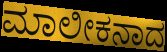
ಮಾಲೀಕನಾದ